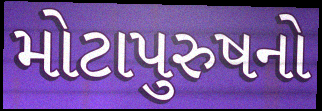
મોટાપુરુષનો